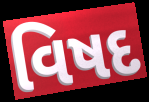
વિષદ